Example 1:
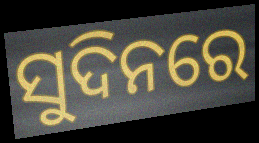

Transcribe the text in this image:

ସୁଦିନରେ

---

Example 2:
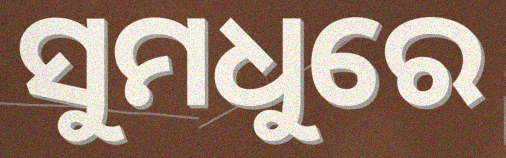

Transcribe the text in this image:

ସୁମଧୁରେ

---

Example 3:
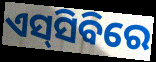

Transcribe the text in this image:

ଏସ୍‌ସିବିରେ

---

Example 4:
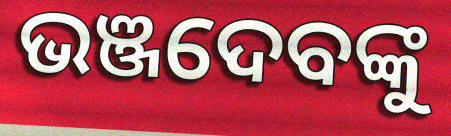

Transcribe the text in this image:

ଭଞ୍ଜଦେବଙ୍କୁ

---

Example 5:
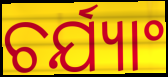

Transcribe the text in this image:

ଚର୍ଯ୍ୟାଂ